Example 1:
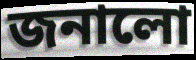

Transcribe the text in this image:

জনালো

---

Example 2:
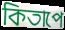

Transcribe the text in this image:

কিতাপে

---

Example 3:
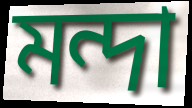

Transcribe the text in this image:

মন্দা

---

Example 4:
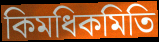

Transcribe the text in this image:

কিমধিকমিতি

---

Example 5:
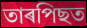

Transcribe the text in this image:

তাৰপিছত